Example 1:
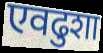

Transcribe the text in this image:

एवढुशा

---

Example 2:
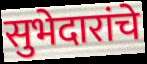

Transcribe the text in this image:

सुभेदारांचे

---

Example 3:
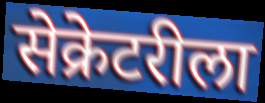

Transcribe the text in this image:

सेक्रेटरीला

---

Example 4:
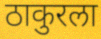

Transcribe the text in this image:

ठाकुरला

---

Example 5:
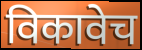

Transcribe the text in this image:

विकावेच